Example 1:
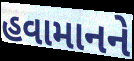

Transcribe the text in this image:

હવામાનને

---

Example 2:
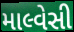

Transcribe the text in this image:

માલ્વેસી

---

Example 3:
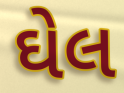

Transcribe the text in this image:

ઘેલ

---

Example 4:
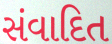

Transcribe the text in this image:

સંવાદિત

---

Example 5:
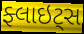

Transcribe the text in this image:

ફ્લાઇટ્સ